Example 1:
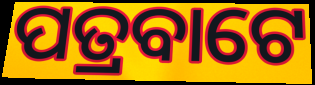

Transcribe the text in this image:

ପତ୍ରବାଟେ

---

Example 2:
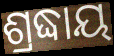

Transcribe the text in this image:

ଶ୍ରଦ୍ଧାୟ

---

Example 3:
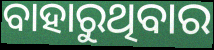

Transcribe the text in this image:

ବାହାରୁଥିବାର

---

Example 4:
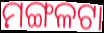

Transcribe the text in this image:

ମଙ୍ଗଳଟା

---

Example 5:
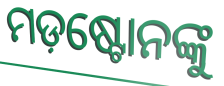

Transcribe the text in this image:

ମଡ଼ଷ୍ଟୋନଙ୍କୁ